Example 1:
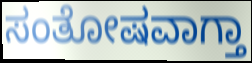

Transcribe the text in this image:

ಸಂತೋಷವಾಗ್ತಾ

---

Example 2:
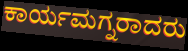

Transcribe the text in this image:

ಕಾರ್ಯಮಗ್ನರಾದರು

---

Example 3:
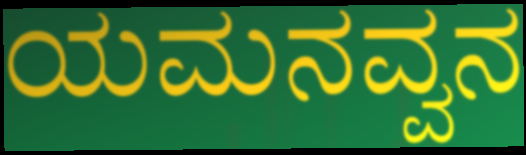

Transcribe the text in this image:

ಯಮನವ್ವನ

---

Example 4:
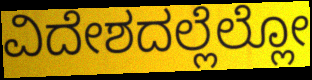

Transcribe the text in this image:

ವಿದೇಶದಲ್ಲೆಲ್ಲೋ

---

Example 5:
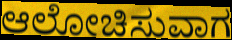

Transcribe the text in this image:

ಆಲೋಚಿಸುವಾಗ